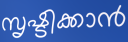
സൃഷ്ടിക്കാൻ